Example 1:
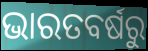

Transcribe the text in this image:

ଭାରତବର୍ଷରୁ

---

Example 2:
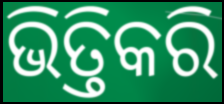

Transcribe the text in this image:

ଭିତ୍ତିକରି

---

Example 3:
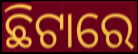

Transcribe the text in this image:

ଛିଟାରେ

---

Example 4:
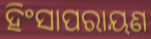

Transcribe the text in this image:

ହିଂସାପରାୟଣ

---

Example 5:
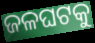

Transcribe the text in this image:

ଜଳଘଟକୁ